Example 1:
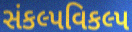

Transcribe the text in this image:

સંકલ્પવિકલ્પ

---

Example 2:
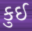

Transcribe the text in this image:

કુઈ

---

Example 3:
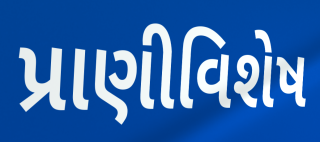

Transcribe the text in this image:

પ્રાણીવિશેષ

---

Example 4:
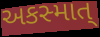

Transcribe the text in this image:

અકસ્માત્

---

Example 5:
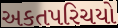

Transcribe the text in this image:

અકતપરિચયો